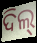
ଦିଲ୍